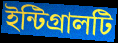
ইন্টিগ্রালটি